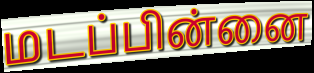
மடப்பின்னை